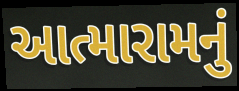
આત્મારામનું